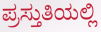
ಪ್ರಸ್ತುತಿಯಲ್ಲಿ